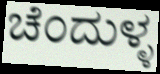
ಚೆಂದುಳ್ಳ